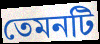
তেমনটি